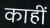
काहीं